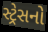
સ્ટ્રેસનો